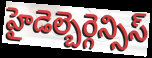
హైడెల్బెర్గెన్సిస్